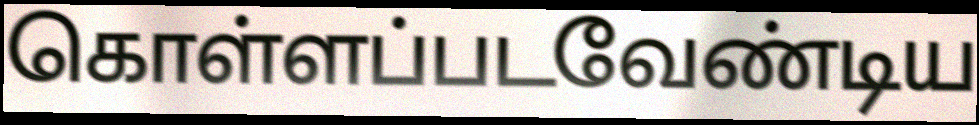
கொள்ளப்படவேண்டிய